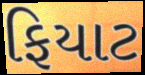
ફિયાટ